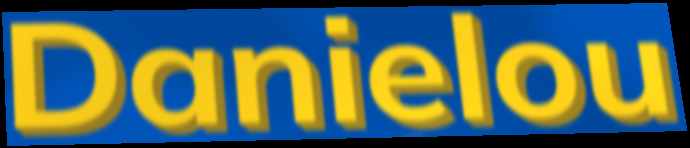
Danielou